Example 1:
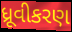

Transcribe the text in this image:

ધ્રૂવીકરણ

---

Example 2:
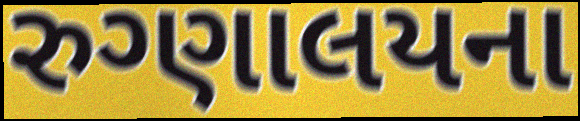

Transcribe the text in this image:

રુગ્ણાલયના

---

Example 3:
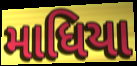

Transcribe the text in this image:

માધિયા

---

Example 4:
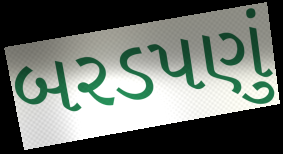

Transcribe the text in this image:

બરડપણું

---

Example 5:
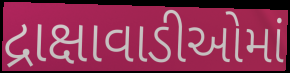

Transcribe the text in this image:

દ્રાક્ષાવાડીઓમાં